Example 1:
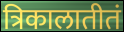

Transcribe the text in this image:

त्रिकालातीतं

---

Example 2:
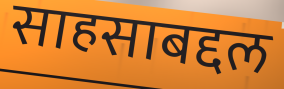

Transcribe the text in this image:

साहसाबद्दल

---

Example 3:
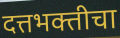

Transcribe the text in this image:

दत्तभक्तीचा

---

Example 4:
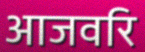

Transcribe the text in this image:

आजवरि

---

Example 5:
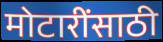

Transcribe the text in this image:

मोटारींसाठी